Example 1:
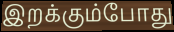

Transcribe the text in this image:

இறக்கும்போது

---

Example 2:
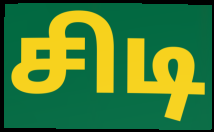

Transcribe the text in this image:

சிடி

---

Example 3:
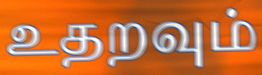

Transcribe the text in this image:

உதறவும்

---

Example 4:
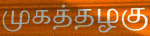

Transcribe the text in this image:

முகத்தழகு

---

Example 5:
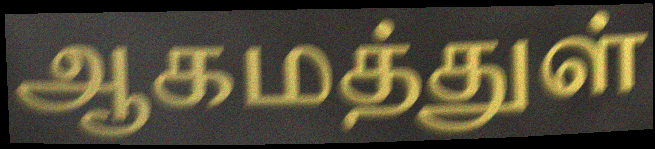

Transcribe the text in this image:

ஆகமத்துள்